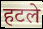
हटले